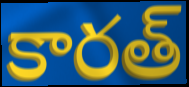
కారత్